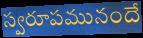
స్వరూపమునందే